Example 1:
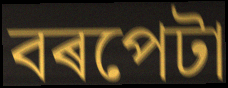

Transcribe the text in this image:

বৰপেটা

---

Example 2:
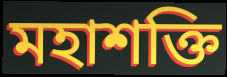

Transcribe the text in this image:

মহাশক্তি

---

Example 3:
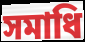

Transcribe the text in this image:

সমাধি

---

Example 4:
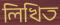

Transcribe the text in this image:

লিখিত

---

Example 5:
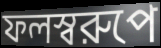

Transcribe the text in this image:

ফলস্বৰুপে